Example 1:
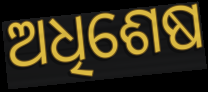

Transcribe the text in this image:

ଅଧିଶେଷ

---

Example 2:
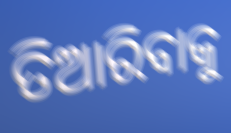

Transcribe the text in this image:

ତିଆରିବାକୁ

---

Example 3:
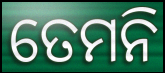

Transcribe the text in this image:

ତେମନି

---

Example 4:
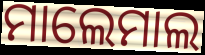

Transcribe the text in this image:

ମାଲେମାଲ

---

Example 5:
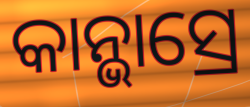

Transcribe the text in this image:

କାନ୍ଭାସ୍ରେ